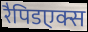
रैपिडएक्स